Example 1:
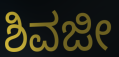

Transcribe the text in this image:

ಶಿವಜೀ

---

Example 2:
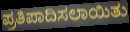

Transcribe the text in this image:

ಪ್ರತಿಪಾದಿಸಲಾಯಿತು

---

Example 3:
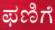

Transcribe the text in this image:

ಫಣಿಗೆ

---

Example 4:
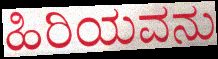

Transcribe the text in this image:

ಹಿರಿಯವನು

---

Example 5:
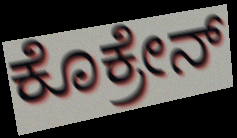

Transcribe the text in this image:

ಕೊಕ್ರೇನ್